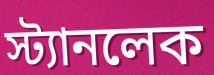
স্ট্যানলেক